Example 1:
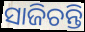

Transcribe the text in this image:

ସାଜିଚନ୍ତି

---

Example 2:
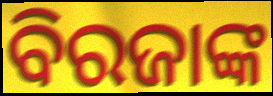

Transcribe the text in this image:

ବିରଜାଙ୍କ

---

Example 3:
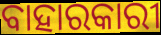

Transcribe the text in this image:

ବାହାରକାରୀ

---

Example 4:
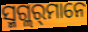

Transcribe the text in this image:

ସ୍ମଗ୍ଲର୍‌ମାନେ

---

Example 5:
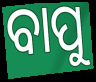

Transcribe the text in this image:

ବାପୁ